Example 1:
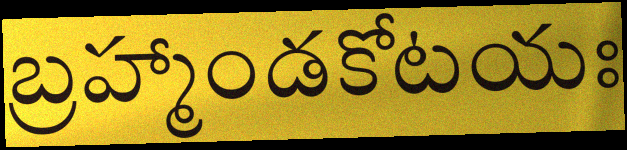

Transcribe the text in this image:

బ్రహ్మాండకోటయః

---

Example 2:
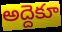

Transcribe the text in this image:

అద్దెకూ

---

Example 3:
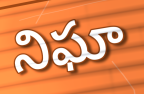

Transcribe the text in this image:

నిఘా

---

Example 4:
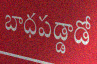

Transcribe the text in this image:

బాధపడ్డాడో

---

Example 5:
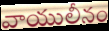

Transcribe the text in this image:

వాయులీనం